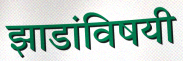
झाडांविषयी